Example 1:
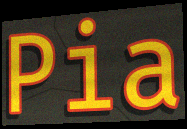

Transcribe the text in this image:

Pia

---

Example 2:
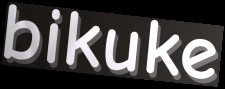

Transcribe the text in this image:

bikuke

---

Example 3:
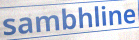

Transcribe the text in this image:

sambhline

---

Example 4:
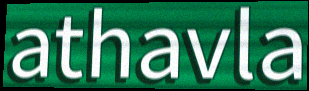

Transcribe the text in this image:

athavla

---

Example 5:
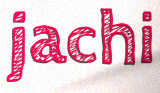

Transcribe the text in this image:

jachi